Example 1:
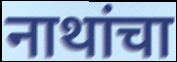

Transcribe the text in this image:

नाथांचा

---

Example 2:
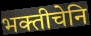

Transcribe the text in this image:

भक्तीचेनि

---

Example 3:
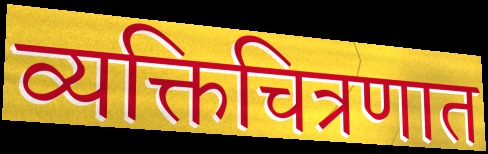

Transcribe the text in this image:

व्यक्तिचित्रणात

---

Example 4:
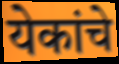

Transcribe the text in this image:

येकांचे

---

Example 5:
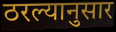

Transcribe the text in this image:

ठरल्यानुसार